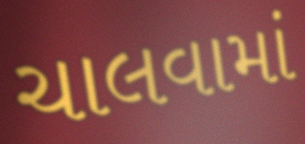
ચાલવામાં